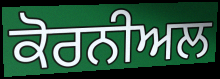
ਕੋਰਨੀਅਲ